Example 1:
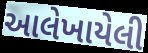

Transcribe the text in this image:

આલેખાયેલી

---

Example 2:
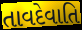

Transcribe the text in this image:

તાવદેવાતિ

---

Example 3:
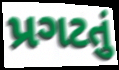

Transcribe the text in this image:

પ્રગટતું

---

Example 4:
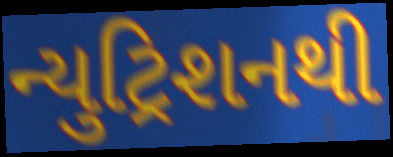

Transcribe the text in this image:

ન્યુટ્રિશનથી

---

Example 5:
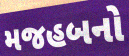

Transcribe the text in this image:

મજહબનો